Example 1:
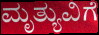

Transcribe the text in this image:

ಮೃತ್ಯುವಿಗೆ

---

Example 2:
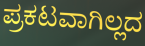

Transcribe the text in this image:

ಪ್ರಕಟವಾಗಿಲ್ಲದ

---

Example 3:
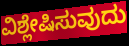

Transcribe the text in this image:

ವಿಶ್ಲೇಷಿಸುವುದು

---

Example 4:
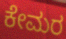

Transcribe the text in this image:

ಕೇಮರ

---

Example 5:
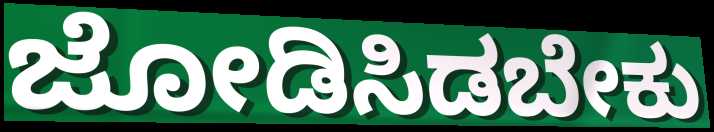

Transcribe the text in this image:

ಜೋಡಿಸಿಡಬೇಕು